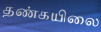
தண்கயிலை